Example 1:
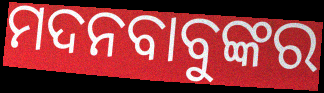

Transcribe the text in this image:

ମଦନବାବୁଙ୍କର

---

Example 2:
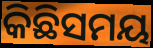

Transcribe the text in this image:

କିଛିସମୟ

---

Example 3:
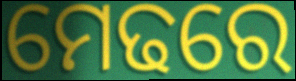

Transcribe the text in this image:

ମେଢରେ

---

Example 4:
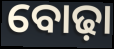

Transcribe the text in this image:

ବୋଢ଼ା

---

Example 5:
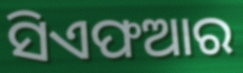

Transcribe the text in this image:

ସିଏଫଆର